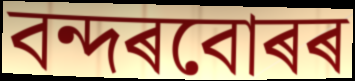
বন্দৰবোৰৰ